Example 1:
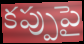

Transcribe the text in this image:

కప్పుపై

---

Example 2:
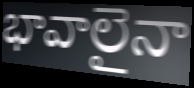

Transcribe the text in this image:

భావాలైనా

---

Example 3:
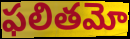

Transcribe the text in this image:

ఫలితమో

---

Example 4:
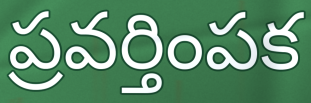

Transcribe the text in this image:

ప్రవర్తింపక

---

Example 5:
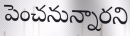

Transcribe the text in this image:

పెంచనున్నారని